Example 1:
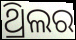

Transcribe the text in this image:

ଥ୍ରିଲର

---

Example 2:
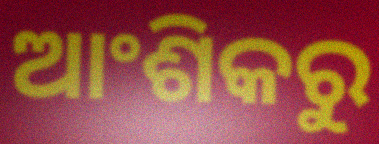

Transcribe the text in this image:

ଆଂଶିକରୁ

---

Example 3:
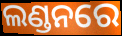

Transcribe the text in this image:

ଲଣ୍ଡନରେ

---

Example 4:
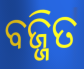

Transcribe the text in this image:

ବଜ୍ଜିତ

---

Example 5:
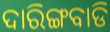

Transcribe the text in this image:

ଦାରିଙ୍ଗବାଡି